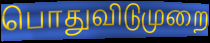
பொதுவிடுமுறை